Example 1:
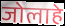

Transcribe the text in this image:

जोलाहे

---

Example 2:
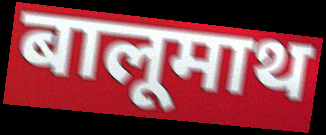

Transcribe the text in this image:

बालूमाथ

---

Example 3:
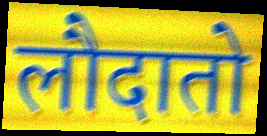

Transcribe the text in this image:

लौदातो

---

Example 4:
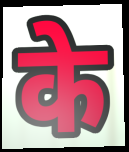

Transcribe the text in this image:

के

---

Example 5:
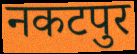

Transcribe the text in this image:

नकटपुर